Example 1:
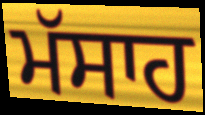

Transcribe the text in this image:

ਮੱਸਾਹ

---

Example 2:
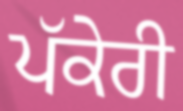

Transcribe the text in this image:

ਪੱਕੇਰੀ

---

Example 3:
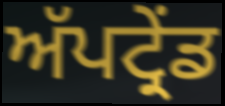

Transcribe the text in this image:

ਅੱਪਟ੍ਰੇਂਡ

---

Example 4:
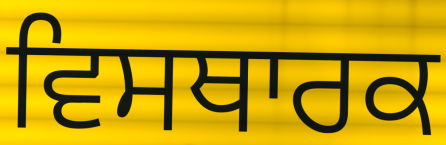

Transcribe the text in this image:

ਵਿਸਥਾਰਕ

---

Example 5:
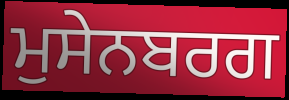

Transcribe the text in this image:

ਮੁਸੇਨਬਰਗ